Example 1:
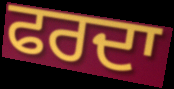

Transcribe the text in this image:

ਫਰਦਾ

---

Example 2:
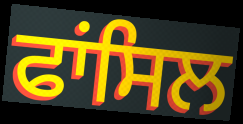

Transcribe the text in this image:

ਫਾਂਸਿਲ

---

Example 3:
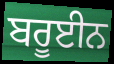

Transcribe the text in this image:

ਬਰੂਈਨ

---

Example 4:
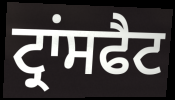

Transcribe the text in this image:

ਟ੍ਰਾਂਸਫੈਟ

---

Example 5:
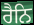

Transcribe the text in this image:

ਰੈਨਿ